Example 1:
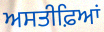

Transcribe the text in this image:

ਅਸਤੀਫ਼ਿਆਂ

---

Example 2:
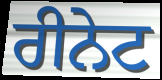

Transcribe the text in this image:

ਰੀਨੇਟ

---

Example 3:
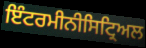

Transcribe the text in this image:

ਇੰਟਰਮੀਨੀਸਿਟ੍ਰਿਅਲ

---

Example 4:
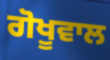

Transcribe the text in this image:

ਗੋਖੂਵਾਲ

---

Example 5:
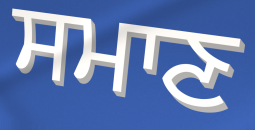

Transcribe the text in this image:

ਸਮਾਣ